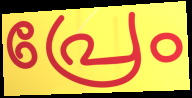
പ്രേം